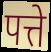
पत्ते